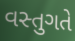
વસ્તુગતે